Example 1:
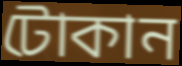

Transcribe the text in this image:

টোকান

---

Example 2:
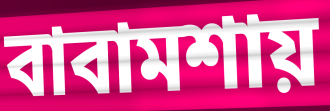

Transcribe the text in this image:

বাবামশায়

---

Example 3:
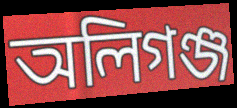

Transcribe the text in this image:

অলিগঞ্জ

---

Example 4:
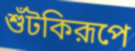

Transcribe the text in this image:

শুঁটকিরূপে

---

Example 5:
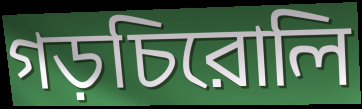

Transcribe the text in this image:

গড়চিরোলি